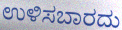
ಉಳಿಸಬಾರದು